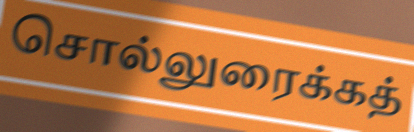
சொல்லுரைக்கத்